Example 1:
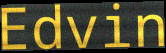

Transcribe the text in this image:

Edvin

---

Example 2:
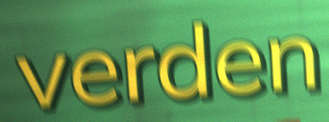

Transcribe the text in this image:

verden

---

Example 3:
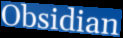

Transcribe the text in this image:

Obsidian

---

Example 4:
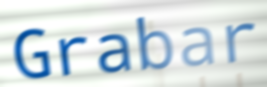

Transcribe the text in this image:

Grabar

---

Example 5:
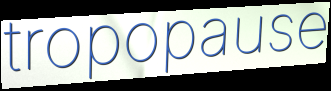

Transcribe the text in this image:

tropopause